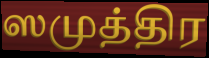
ஸமுத்திர